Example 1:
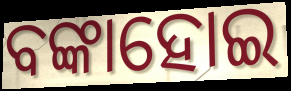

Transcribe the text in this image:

ବଙ୍କାହୋଇ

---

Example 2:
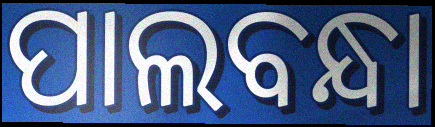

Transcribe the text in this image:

ପାଲବନ୍ଧା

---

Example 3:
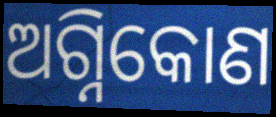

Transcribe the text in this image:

ଅଗ୍ନିକୋଣ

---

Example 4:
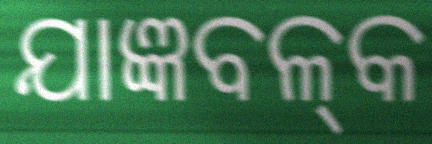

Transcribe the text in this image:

ଯାଜ୍ଞବଳ୍‍କ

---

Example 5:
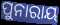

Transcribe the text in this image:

ପୁନାରାୟ